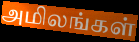
அமிலங்கள்